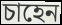
চাহেন